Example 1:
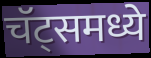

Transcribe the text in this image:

चॅट्समध्ये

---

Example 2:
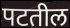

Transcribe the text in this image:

पटतील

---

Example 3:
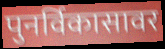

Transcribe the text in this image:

पुनर्विकासावर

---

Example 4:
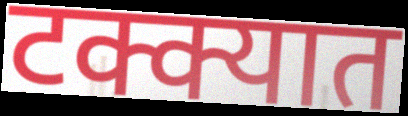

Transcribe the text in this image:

टक्क्यात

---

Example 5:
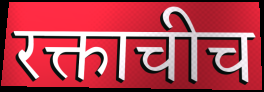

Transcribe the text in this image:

रक्ताचीच